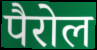
पैरोल